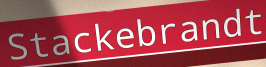
Stackebrandt